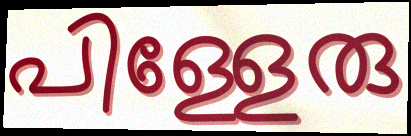
പിള്ളേരു